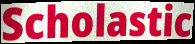
Scholastic